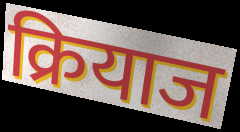
क्रियाज